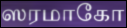
ஸரமாகோ